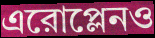
এরোপ্লেনও